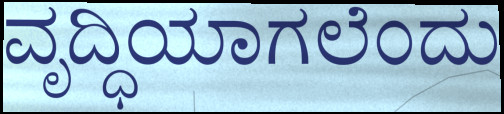
ವೃದ್ಧಿಯಾಗಲೆಂದು